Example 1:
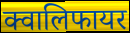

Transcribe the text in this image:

क्वालिफायर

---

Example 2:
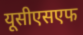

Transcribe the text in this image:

यूसीएसएफ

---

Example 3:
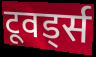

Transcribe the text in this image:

टूवर्ड्स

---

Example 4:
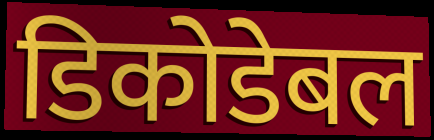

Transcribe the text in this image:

डिकोडेबल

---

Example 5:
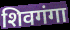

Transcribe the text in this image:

शिवगंगा